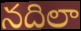
నదిలా